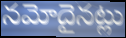
నమోదైనట్లు